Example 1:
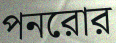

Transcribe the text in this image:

পনরোর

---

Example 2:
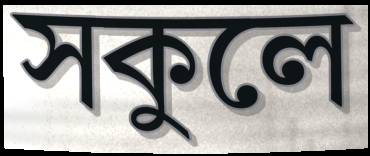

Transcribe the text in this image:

সকুলে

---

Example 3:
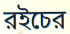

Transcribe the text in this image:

রইচের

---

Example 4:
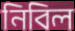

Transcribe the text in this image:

নিবিল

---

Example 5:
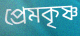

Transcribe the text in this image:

প্রেমকৃষ্ণ